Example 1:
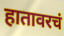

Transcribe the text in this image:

हातावरचं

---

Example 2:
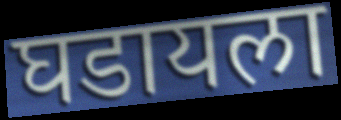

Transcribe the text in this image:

घडायला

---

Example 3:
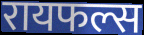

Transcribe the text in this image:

रायफल्स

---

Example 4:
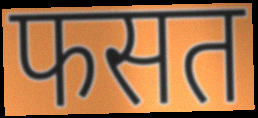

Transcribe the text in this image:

फसत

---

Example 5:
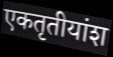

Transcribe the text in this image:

एकतृतीयांश